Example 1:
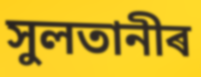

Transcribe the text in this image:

সুলতানীৰ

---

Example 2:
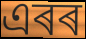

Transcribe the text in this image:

এৰৰ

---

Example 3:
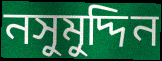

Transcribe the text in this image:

নসুমুদ্দিন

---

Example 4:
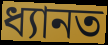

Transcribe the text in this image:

ধ্যানত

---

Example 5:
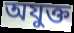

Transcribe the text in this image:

অযুক্ত